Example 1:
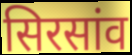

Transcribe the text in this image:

सिरसांव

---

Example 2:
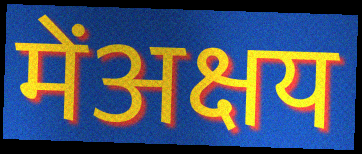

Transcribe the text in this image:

मेंअक्षय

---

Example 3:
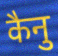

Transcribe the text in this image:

कैनु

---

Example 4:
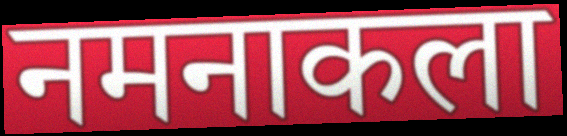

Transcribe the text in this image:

नमनाकला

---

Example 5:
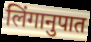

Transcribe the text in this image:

लिंगानुपात